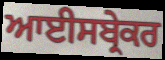
ਆਈਸਬ੍ਰੇਕਰ